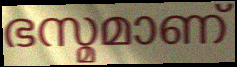
ഭസ്മമാണ്